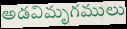
అడవిమృగములు